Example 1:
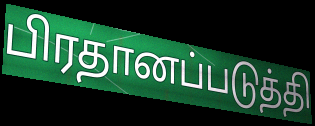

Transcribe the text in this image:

பிரதானப்படுத்தி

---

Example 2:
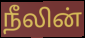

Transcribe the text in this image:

நீலின்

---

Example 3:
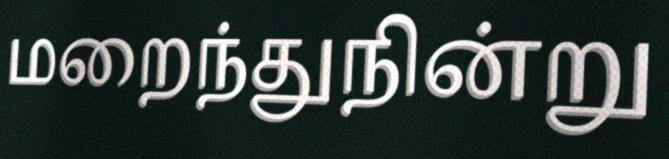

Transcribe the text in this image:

மறைந்துநின்று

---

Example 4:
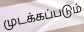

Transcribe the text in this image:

முடக்கப்படும்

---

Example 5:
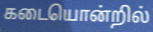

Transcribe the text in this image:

கடையொன்றில்